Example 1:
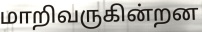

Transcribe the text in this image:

மாறிவருகின்றன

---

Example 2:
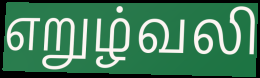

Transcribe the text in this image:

எறுழ்வலி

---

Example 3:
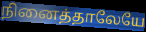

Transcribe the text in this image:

நினைத்தாலேயே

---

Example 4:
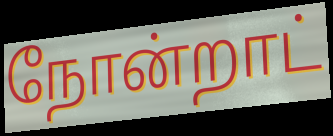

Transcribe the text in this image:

நோன்றாட்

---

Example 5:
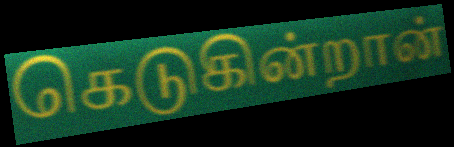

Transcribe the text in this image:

கெடுகின்றான்